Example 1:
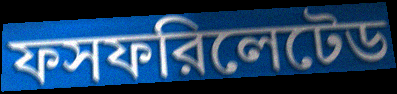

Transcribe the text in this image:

ফসফরিলেটেড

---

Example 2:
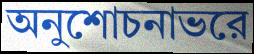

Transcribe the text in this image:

অনুশোচনাভরে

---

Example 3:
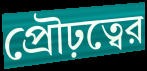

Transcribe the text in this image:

প্রৌঢ়ত্বের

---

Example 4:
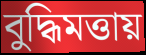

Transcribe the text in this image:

বুদ্ধিমত্তায়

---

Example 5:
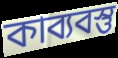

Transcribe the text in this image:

কাব্যবস্তু